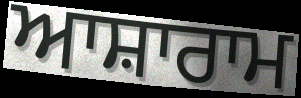
ਆਸ਼ਾਰਾਮ